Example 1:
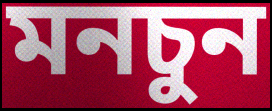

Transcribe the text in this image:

মনচুন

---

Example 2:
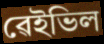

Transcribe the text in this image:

ৱেইভিল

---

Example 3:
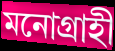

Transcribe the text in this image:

মনোগ্ৰাহী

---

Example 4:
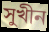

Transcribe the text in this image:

সুখীন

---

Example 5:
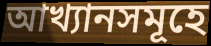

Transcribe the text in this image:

আখ্যানসমূহে